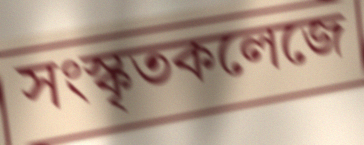
সংস্কৃতকলেজে